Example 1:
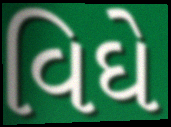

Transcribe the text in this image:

વિઘે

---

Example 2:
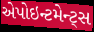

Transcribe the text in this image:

એપોઇન્ટમેન્ટ્સ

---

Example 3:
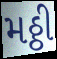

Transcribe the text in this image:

મઠ્ઠી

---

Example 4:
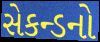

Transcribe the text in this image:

સેકન્ડનો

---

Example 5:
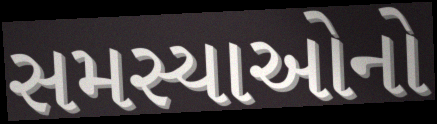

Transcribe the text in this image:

સમસ્યાઓનો